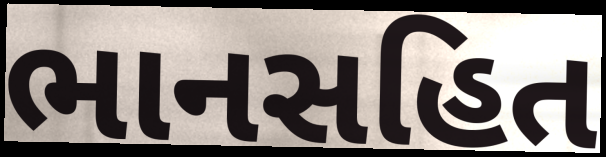
ભાનસહિત